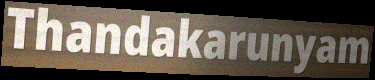
Thandakarunyam